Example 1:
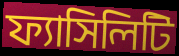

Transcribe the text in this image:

ফ্যাসিলিটি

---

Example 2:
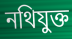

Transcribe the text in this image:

নথিযুক্ত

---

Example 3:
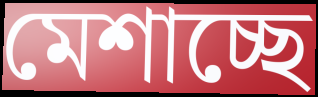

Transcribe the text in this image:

মেশাচ্ছে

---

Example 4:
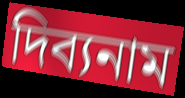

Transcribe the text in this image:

দিব্যনাম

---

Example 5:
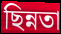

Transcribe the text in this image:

ছিন্নতা